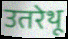
उतरेथू